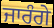
ਜਾਰੰਗੇ